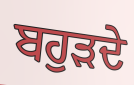
ਬਹੁੜਦੇ